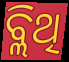
ବ୍ଲିଥି